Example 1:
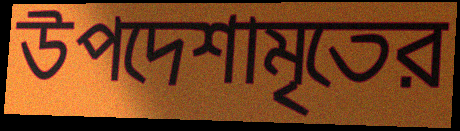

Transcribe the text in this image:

উপদেশামৃতের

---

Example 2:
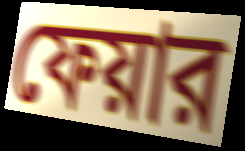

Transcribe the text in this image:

ফেয়ার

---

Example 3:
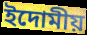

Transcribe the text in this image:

ইদোমীয়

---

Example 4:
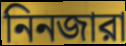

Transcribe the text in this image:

নিনজারা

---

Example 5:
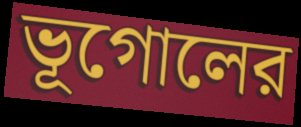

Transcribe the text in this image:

ভূগোলের